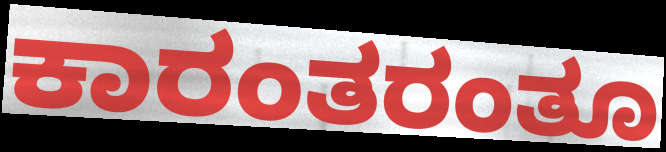
ಕಾರಂತರಂತೂ